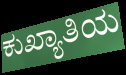
ಕುಖ್ಯಾತಿಯ